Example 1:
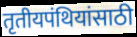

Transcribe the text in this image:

तृतीयपंथियांसाठी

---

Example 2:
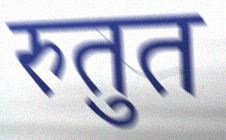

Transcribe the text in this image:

रुतुत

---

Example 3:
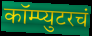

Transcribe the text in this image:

कॉम्प्युटरचं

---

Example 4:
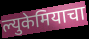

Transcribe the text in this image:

ल्युकेमियाचा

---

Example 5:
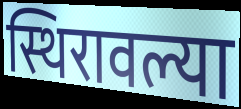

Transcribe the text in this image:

स्थिरावल्या